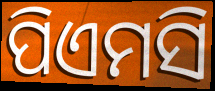
ପିଏମସି